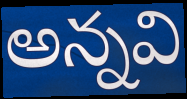
అన్నవి